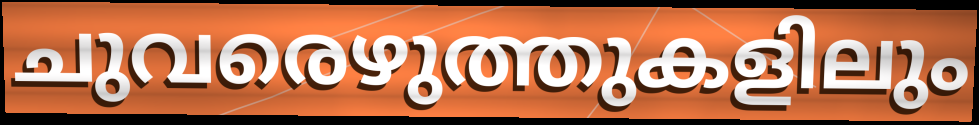
ചുവരെഴുത്തുകളിലും